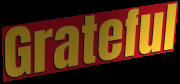
Grateful